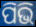
ପିଭି